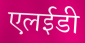
एलईडी